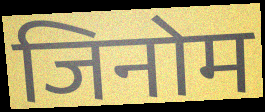
जिनोम